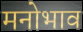
मनोभाव